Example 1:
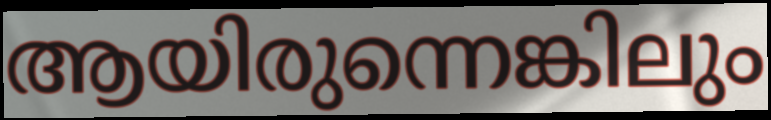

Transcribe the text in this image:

ആയിരുന്നെങ്കിലും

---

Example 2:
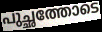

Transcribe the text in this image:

പുച്ഛത്തോടെ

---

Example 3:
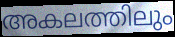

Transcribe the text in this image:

അകലത്തിലും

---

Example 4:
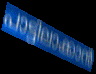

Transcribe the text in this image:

പാട്ടിലാക്കാൻ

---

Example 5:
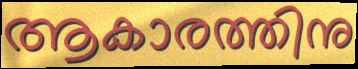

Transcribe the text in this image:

ആകാരത്തിനു